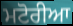
ਮਟੋਰੀਆ